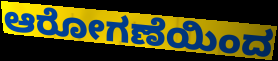
ಆರೋಗಣೆಯಿಂದ